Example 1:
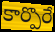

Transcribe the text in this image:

కార్పొరే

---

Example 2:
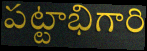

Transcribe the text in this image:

పట్టాభిగారి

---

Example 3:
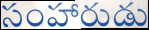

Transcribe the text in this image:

సంహారుడు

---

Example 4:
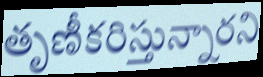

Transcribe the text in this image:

తృణీకరిస్తున్నారని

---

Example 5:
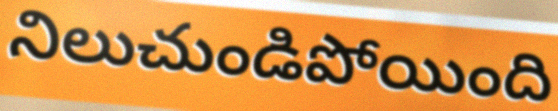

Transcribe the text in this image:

నిలుచుండిపోయింది